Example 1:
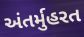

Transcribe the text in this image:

અંતર્મુહરત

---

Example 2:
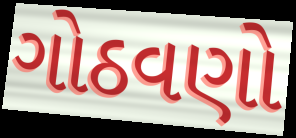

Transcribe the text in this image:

ગોઠવણો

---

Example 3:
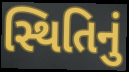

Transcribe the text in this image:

સ્થિતિનું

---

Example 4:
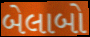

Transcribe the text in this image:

બેલાબો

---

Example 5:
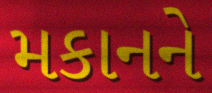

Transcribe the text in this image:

મકાનને